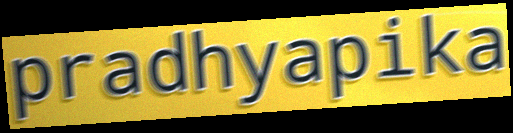
pradhyapika